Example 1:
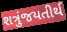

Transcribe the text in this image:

શત્રુંજયતીર્થ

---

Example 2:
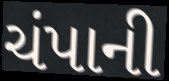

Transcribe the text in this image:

ચંપાની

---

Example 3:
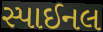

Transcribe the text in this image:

સ્પાઈનલ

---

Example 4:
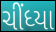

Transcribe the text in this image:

ચીંધ્યા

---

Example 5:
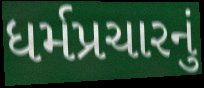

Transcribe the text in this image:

ધર્મપ્રચારનું